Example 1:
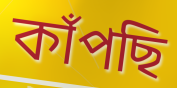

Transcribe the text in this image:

কাঁপছি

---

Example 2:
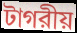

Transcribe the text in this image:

টাগরীয়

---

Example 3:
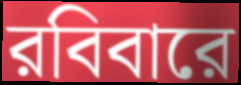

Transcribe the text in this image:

রবিবারে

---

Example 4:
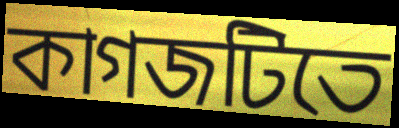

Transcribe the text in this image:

কাগজটিতে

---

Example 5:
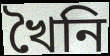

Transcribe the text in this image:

খৈনি